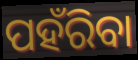
ପହଁରିବା